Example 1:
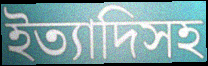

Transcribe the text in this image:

ইত্যাদিসহ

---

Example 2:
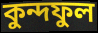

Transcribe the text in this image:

কুন্দফুল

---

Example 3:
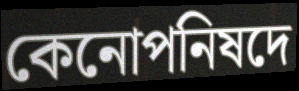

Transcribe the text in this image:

কেনোপনিষদে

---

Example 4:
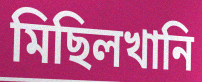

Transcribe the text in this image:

মিছিলখানি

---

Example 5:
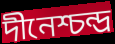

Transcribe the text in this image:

দীনেশ্চন্দ্র